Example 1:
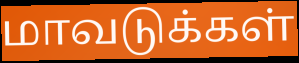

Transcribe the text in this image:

மாவடுக்கள்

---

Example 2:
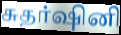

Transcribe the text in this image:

சுதர்ஷினி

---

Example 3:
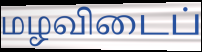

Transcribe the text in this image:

மழவிடைப்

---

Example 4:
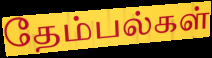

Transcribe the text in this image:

தேம்பல்கள்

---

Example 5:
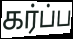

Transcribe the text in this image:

கர்ப்ப